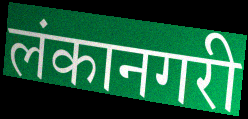
लंकानगरी